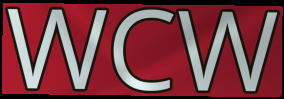
WCW